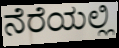
ನೆರೆಯಲ್ಲಿ